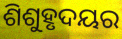
ଶିଶୁହୃଦୟର